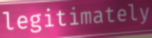
legitimately